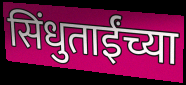
सिंधुताईंच्या